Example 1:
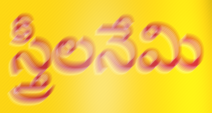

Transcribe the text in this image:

స్త్రీలనేమి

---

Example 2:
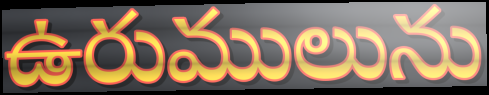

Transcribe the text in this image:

ఉరుములును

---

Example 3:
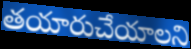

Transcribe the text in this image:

తయారుచేయాలని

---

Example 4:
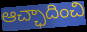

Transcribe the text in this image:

ఆచ్ఛాదించి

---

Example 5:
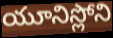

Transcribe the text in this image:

యూనిస్లోని